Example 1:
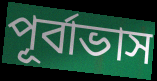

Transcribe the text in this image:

পূৰ্বাভাস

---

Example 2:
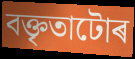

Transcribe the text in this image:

বক্তৃতাটোৰ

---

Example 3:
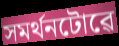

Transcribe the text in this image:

সমৰ্থনটোৱে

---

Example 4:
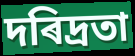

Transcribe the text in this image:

দৰিদ্ৰতা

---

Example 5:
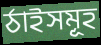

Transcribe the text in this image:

ঠাইসমূহ